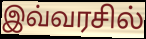
இவ்வரசில்